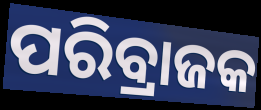
ପରିବ୍ରାଜକ